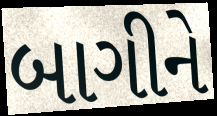
બાગીને